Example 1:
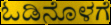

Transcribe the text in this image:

ಓಡಿನೊಳಗೆ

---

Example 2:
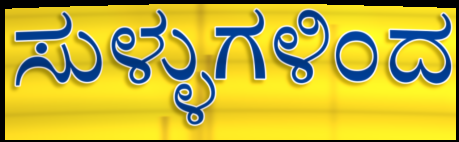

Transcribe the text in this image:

ಸುಳ್ಳುಗಳಿಂದ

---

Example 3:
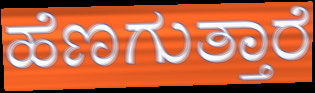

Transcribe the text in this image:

ಹೆಣಗುತ್ತಾರೆ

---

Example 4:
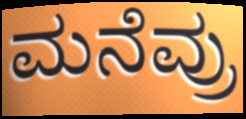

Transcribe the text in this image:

ಮನೆವ್ರು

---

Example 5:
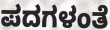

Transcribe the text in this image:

ಪದಗಳಂತೆ